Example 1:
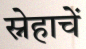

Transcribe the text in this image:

स्नेहाचें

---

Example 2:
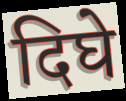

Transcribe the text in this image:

दिघे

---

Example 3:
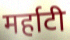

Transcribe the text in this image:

मर्हाटी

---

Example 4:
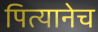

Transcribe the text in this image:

पित्यानेच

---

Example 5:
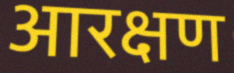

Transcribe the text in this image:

आरक्षण